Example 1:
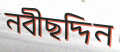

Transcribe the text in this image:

নবীছদ্দিন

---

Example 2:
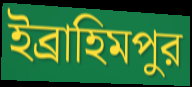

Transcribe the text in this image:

ইব্রাহিমপুর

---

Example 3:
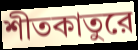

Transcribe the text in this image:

শীতকাতুরে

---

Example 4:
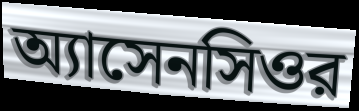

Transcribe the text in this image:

অ্যাসেনসিওর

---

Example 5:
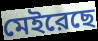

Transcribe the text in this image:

মেইরেছে